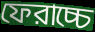
ফেরাচ্চে